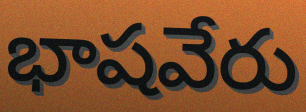
భాషవేరు